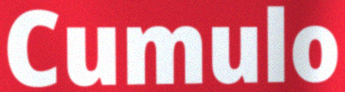
Cumulo